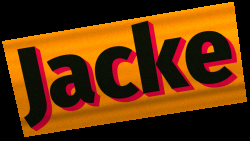
Jacke